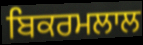
ਬਿਕਰਮਲਾਲ